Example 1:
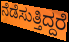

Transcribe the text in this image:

ನೆಡೆಸುತ್ತಿದ್ದರೆ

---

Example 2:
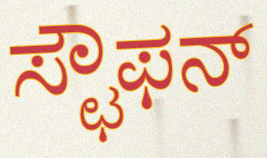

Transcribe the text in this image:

ಸ್ಟೌಫನ್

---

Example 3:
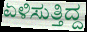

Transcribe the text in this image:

ಏಳಿಸುತ್ತಿದ್ದ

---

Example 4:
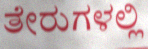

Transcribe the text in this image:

ತೇರುಗಳಲ್ಲಿ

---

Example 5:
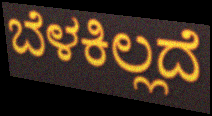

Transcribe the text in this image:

ಬೆಳಕಿಲ್ಲದೆ